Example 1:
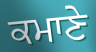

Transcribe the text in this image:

ਕਮਾਣੇ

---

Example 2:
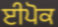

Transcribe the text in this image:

ਈਪੋਕ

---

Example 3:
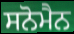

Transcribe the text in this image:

ਸਨੋਮੈਨ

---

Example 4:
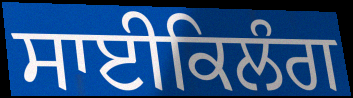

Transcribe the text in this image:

ਸਾਈਕਿਲੰਗ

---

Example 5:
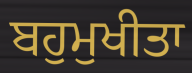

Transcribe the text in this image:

ਬਹੁਮੁਖੀਤਾ